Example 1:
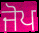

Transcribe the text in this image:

ਜੋਪ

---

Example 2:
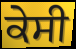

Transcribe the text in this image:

ਕੇਸੀ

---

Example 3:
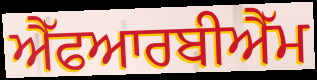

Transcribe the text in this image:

ਐੱਫਆਰਬੀਐੱਮ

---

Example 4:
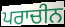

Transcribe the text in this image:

ਪਰਾਚੀਨ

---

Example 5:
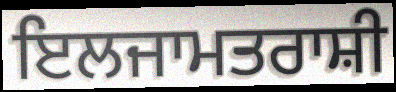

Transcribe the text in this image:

ਇਲਜਾਮਤਰਾਸ਼ੀ